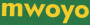
mwoyo